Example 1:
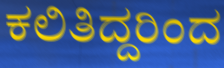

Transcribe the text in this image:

ಕಲಿತಿದ್ದರಿಂದ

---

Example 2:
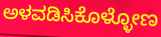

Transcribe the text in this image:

ಅಳವಡಿಸಿಕೊಳ್ಳೋಣ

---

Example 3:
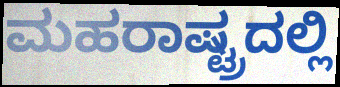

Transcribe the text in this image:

ಮಹರಾಷ್ಟ್ರದಲ್ಲಿ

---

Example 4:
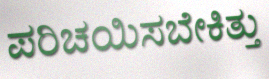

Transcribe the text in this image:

ಪರಿಚಯಿಸಬೇಕಿತ್ತು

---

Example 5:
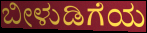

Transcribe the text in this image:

ಬೀಳುಡಿಗೆಯ